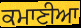
ਕਮਾਣੀਆ